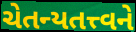
ચેતન્યતત્ત્વને